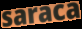
saraca